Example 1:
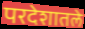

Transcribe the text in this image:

परदेशातले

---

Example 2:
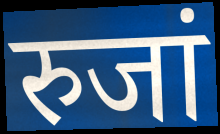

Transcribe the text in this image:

रुजां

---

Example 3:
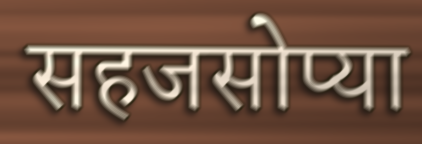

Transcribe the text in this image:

सहजसोप्या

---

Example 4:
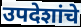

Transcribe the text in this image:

उपदेशांचे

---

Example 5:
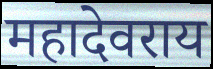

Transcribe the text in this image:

महादेवराय